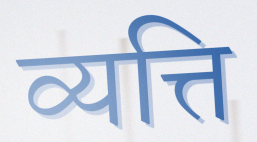
व्यत्ति